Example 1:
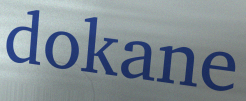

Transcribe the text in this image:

dokane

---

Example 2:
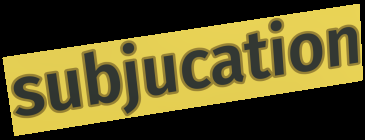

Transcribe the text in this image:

subjucation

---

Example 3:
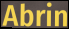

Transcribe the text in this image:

Abrin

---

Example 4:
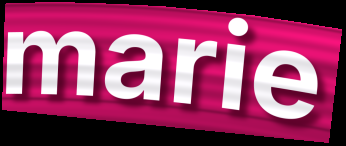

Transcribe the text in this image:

marie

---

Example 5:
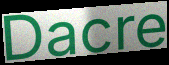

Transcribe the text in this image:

Dacre